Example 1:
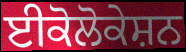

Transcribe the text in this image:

ਈਕੋਲੋਕੇਸ਼ਨ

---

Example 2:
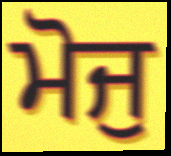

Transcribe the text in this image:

ਮੋਜੁ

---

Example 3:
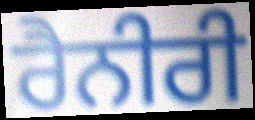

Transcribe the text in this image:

ਰੈਨੀਰੀ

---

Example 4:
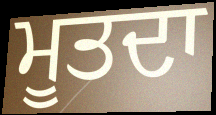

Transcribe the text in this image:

ਮੂਤਦਾ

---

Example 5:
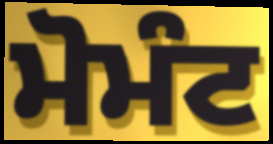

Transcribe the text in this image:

ਮੋਮੰਟ